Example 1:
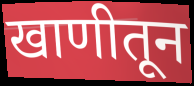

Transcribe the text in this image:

खाणीतून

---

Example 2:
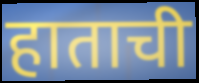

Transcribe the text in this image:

हाताची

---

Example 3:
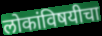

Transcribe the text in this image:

लोकांविषयीचा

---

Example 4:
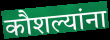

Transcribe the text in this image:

कौशल्यांना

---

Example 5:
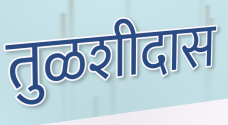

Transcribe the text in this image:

तुळशीदास